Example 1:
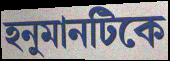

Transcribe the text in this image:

হনুমানটিকে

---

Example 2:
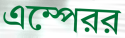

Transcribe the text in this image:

এম্পেরর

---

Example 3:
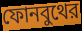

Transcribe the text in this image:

ফোনবুথের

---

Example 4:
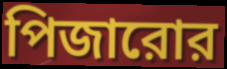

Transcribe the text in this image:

পিজারোর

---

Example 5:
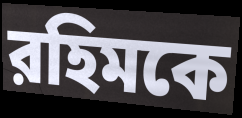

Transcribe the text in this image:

রহিমকে